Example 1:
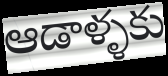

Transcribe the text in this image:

ఆడాళ్ళకు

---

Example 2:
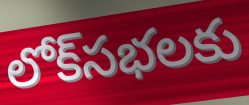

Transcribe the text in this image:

లోక్‌సభలకు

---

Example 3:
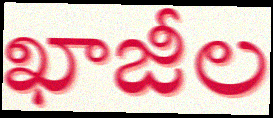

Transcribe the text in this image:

ఖాజీల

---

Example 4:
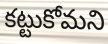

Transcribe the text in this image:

కట్టుకోమని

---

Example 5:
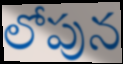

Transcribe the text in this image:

లోపున